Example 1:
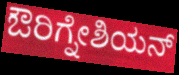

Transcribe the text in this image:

ಔರಿಗ್ನೇಶಿಯನ್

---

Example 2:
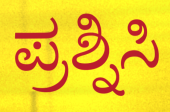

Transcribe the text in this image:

ಪ್ರಶ್ನಿಸಿ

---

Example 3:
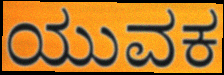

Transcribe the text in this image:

ಯುವಕ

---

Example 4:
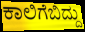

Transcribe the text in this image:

ಕಾಲಿಗೆಬಿದ್ದು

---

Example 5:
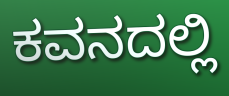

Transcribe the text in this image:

ಕವನದಲ್ಲಿ